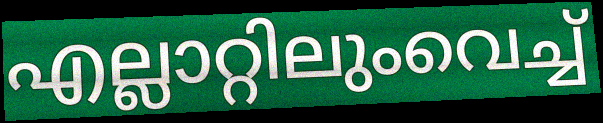
എല്ലാറ്റിലുംവെച്ച്